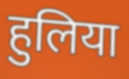
हुलिया